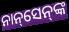
ନାନ୍‌ସେନ୍‌ଙ୍କ